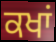
ਕਖਾਂ